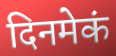
दिनमेकं